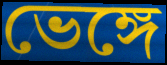
ভেঙ্গে